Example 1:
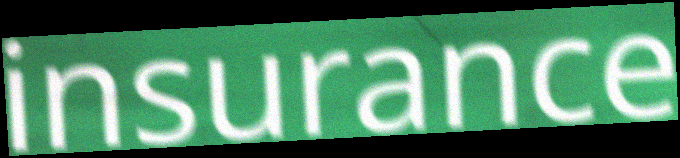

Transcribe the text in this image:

insurance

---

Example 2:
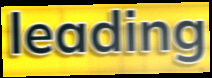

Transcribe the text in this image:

leading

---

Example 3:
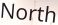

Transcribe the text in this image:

North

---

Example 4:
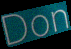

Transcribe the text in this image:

Don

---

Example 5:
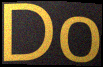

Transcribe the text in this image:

Do